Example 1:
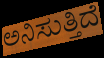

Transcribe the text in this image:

ಅನಿಸುತ್ತಿದೆ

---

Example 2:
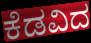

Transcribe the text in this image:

ಕೆಡವಿದ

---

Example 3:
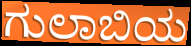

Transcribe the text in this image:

ಗುಲಾಬಿಯ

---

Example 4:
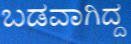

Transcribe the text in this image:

ಬಡವಾಗಿದ್ದ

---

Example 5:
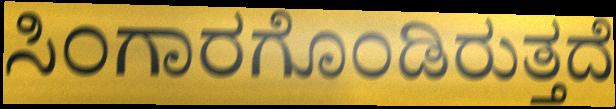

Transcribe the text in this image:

ಸಿಂಗಾರಗೊಂಡಿರುತ್ತದೆ